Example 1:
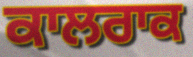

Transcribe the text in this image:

ਕਾਲਰਾਕ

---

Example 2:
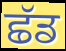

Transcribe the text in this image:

ਛੱਡ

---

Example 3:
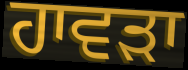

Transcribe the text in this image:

ਹਾਵਡ਼ਾ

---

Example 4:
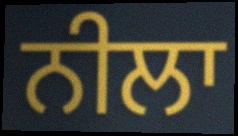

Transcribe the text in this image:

ਨੀਲਾ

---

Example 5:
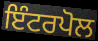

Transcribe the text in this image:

ਇੰਟਰਪੋਲ